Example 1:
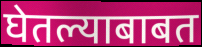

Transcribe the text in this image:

घेतल्याबाबत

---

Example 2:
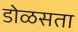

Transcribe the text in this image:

डोळसता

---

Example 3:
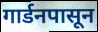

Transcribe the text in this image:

गार्डनपासून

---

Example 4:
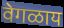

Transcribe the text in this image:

वेगळाय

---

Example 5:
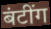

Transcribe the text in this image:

बंटींग